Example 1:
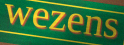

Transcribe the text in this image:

wezens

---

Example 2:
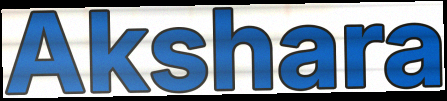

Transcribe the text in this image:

Akshara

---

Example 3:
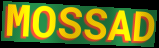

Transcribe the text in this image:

MOSSAD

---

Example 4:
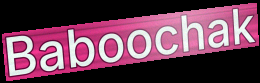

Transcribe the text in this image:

Baboochak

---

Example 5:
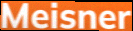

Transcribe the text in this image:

Meisner